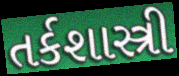
તર્કશાસ્ત્રી